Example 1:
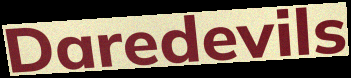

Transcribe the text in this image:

Daredevils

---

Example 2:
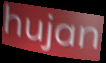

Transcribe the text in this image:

hujan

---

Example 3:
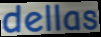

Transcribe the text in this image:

dellas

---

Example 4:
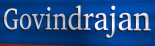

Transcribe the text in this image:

Govindrajan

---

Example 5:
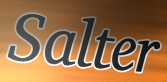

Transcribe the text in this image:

Salter